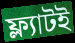
ফ্ল্যাটই